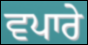
ਵਪਾਰੇ